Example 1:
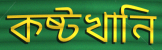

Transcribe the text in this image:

কষ্টখানি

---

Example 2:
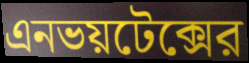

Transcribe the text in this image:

এনভয়টেক্সের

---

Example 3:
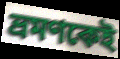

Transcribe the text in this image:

ভ্রমণকেই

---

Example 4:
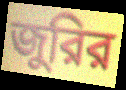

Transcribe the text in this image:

জুরির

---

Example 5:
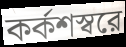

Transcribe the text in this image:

কর্কশস্বরে